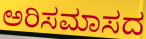
ಅರಿಸಮಾಸದ